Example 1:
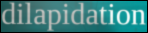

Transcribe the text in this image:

dilapidation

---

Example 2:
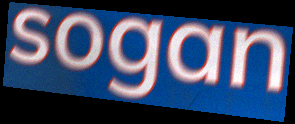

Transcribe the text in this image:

sogan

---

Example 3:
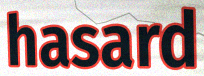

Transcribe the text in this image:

hasard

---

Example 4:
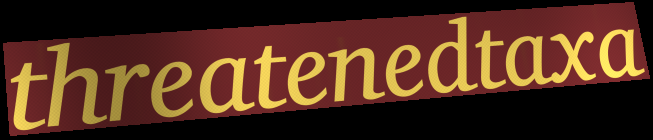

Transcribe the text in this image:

threatenedtaxa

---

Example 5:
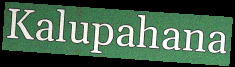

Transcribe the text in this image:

Kalupahana